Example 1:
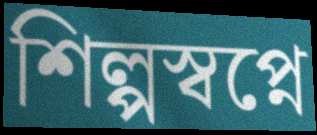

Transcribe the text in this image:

শিল্পস্বপ্নে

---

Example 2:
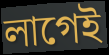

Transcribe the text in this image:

লাগেই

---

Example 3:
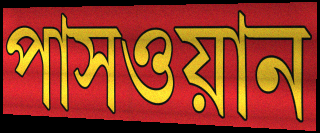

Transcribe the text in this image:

পাসওয়ান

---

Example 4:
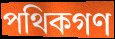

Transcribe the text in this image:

পথিকগণ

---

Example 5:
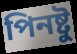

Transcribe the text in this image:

পিনষ্টু